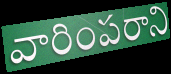
వారింపరాని